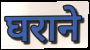
घराने